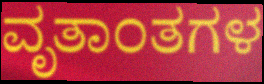
ವೃತಾಂತಗಳ